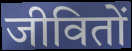
जीवितों